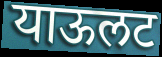
याऊलट